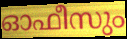
ഓഫീസും